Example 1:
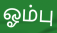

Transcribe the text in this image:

ஓம்பு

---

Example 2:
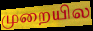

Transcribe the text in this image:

முறையில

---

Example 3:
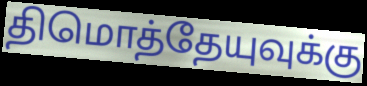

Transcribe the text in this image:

திமொத்தேயுவுக்கு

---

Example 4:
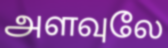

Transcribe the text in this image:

அளவுலே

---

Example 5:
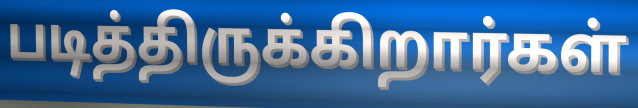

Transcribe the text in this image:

படித்திருக்கிறார்கள்